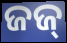
ଜଜ୍